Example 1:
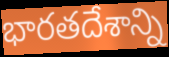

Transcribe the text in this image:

భారతదేశాన్ని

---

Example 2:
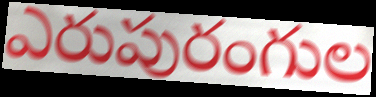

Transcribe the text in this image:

ఎరుపురంగుల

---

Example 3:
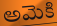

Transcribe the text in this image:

అమెకి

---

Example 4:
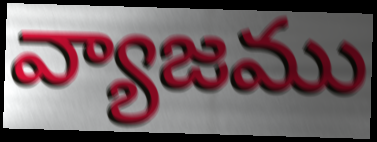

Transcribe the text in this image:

వ్యాజము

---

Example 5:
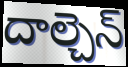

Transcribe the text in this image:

దాల్చెన్